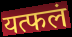
यत्फलं